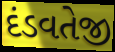
દંડવતેજી